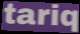
tariq